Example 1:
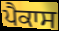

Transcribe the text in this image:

ਪੈਕਾਸ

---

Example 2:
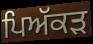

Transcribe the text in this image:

ਪਿਅੱਕੜ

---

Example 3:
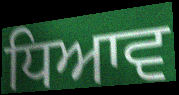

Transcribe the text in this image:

ਧਿਆਵ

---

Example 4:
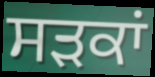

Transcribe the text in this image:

ਸਡ਼ਕਾਂ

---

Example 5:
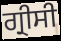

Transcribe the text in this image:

ਗ੍ਰੀਸੀ